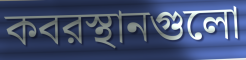
কবরস্থানগুলো